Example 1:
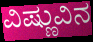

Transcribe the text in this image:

ವಿಷ್ಣುವಿನ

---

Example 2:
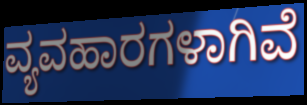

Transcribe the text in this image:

ವ್ಯವಹಾರಗಳಾಗಿವೆ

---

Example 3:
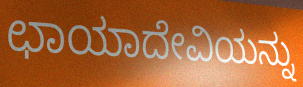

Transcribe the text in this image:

ಛಾಯಾದೇವಿಯನ್ನು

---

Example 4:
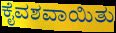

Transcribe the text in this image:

ಕೈವಶವಾಯಿತು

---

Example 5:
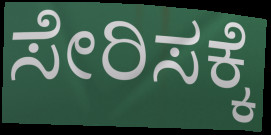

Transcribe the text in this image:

ಸೇರಿಸಕ್ಕೆ